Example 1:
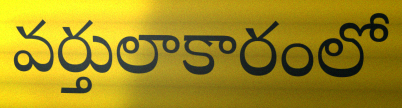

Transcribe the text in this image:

వర్తులాకారంలో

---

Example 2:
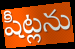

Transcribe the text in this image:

షీట్లను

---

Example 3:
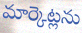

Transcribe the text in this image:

మార్కెట్లను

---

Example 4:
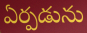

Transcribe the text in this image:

ఏర్పడును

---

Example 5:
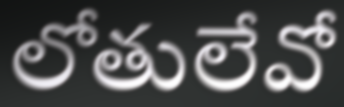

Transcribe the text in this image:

లోతులేవో